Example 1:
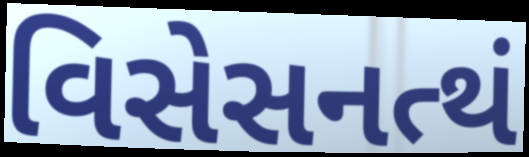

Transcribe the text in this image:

વિસેસનત્થં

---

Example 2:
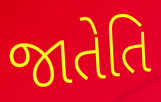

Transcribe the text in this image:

જાતેતિ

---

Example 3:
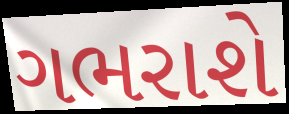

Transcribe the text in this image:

ગભરાશે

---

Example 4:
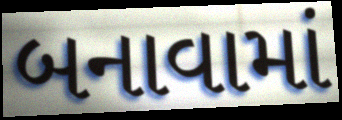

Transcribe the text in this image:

બનાવામાં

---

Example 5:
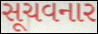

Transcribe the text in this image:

સૂચવનાર